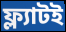
ফ্ল্যাটই